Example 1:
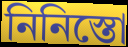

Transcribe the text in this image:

নিনিস্তো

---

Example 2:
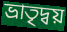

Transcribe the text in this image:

ভ্রাতৃদ্বয়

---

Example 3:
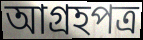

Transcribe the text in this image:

আগ্রহপত্র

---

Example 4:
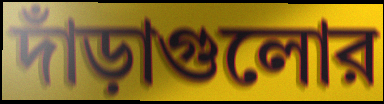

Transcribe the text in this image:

দাঁড়াগুলোর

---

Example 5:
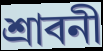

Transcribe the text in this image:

শ্রাবনী